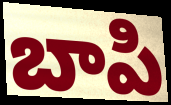
బాపి